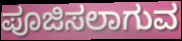
ಪೂಜಿಸಲಾಗುವ